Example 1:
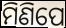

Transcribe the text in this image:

ମିଣିପେ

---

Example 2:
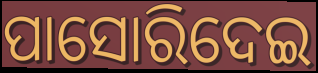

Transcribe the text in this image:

ପାସୋରିଦେଇ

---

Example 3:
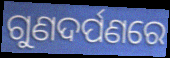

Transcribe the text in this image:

ଗୁଣଦର୍ପଣରେ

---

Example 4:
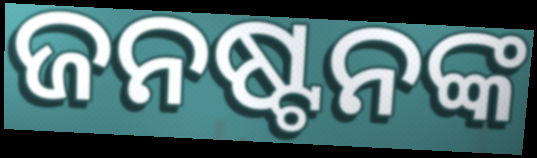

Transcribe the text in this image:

ଜନଷ୍ଟନଙ୍କ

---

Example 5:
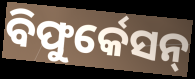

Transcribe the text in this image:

ବିଫୁର୍କେସନ୍